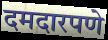
दमदारपणे